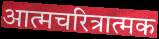
आत्मचरित्रात्मक